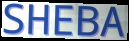
SHEBA